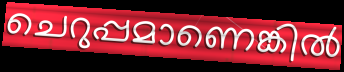
ചെറുപ്പമാണെങ്കിൽ